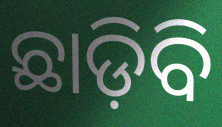
ଛାଡ଼ିବି